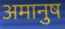
अमानुष